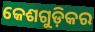
କେଶଗୁଡ଼ିକର